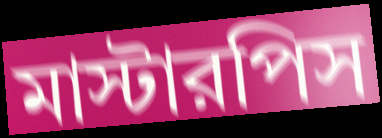
মাস্টারপিস